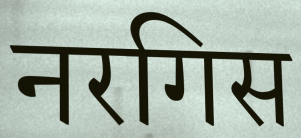
नरगिस